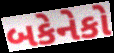
બકેનેકો